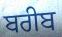
ਬਰੀਬ